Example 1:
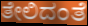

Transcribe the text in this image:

ತೇಲಿದಂತೆ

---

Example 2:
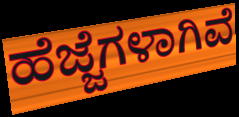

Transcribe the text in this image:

ಹೆಜ್ಜೆಗಳಾಗಿವೆ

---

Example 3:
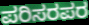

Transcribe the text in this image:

ಪರಿಸರಪರ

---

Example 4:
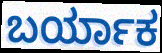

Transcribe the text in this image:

ಬರ್ಯಾಕ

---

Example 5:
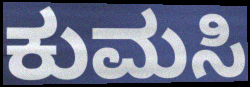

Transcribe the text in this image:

ಕುಮಸಿ